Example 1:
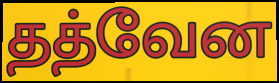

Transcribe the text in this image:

தத்வேன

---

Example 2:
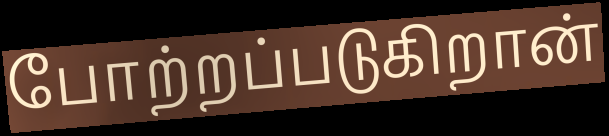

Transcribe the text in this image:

போற்றப்படுகிறான்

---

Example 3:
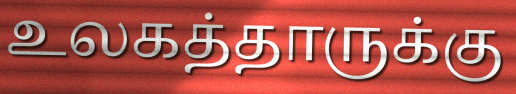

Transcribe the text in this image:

உலகத்தாருக்கு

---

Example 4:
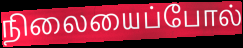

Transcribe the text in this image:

நிலையைப்போல்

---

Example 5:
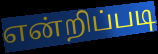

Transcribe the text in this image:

என்றிப்படி